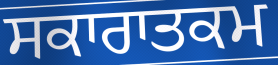
ਸਕਾਰਾਤਕਮ